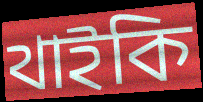
থাইকি